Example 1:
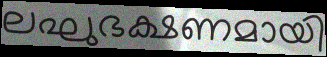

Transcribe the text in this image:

ലഘുഭക്ഷണമായി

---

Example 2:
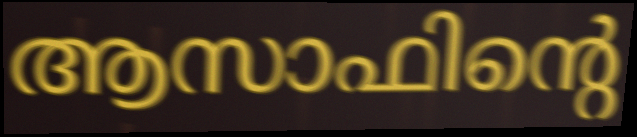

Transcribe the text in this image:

ആസാഫിന്റെ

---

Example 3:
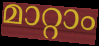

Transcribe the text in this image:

മാറ്റാം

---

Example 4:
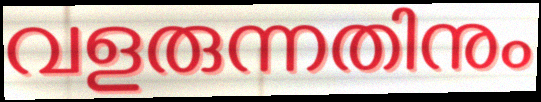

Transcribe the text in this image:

വളരുന്നതിനും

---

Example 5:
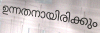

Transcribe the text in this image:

ഉന്നതനായിരിക്കും